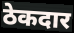
ठेकदार